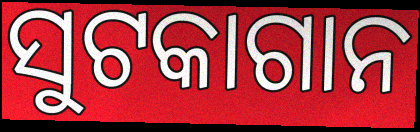
ସୁଟକାଗାନ